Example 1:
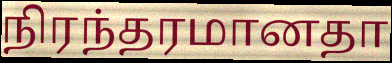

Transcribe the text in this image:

நிரந்தரமானதா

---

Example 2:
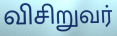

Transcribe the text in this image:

விசிறுவர்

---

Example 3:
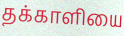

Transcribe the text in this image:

தக்காளியை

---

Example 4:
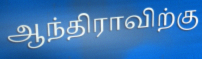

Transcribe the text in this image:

ஆந்திராவிற்கு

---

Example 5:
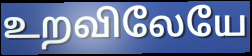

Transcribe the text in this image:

உறவிலேயே